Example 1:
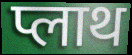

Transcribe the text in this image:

प्लाथ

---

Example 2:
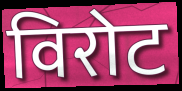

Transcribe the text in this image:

विरोट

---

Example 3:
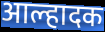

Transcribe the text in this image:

आल्हादक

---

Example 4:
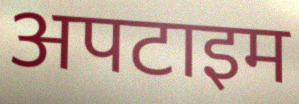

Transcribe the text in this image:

अपटाइम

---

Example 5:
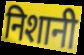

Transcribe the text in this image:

निशानी